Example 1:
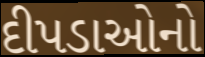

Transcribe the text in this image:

દીપડાઓનો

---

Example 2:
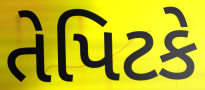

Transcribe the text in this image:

તેપિટકે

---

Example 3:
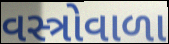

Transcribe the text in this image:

વસ્ત્રોવાળા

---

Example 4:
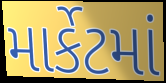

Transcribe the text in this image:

માર્કેટમાં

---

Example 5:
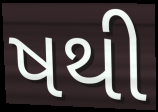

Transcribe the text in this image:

ષથી